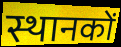
स्थानकों